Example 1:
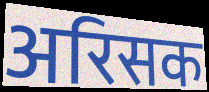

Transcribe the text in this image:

अरिसक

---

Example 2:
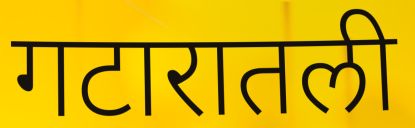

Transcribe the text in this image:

गटारातली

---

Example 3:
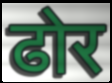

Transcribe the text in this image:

ढोर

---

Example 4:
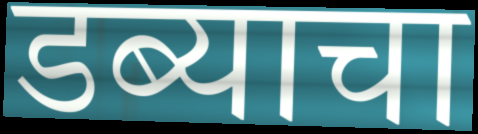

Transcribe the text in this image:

डब्याचा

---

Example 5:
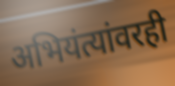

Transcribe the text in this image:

अभियंत्यांवरही